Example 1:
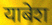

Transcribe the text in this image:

याबेश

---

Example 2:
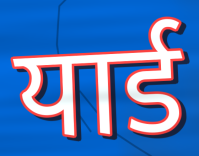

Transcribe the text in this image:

यार्ड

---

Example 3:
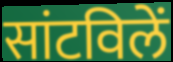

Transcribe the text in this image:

सांटविलें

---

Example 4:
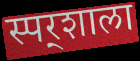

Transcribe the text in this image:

स्पर्शाला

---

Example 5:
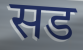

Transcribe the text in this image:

सड